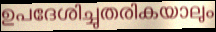
ഉപദേശിച്ചുതരികയാലും